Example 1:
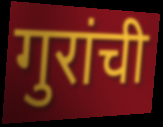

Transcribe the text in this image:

गुरांची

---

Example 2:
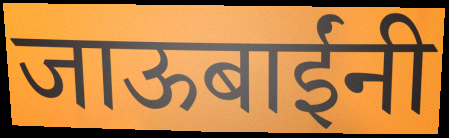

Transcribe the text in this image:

जाऊबाईंनी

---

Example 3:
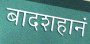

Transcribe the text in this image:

बादशहानं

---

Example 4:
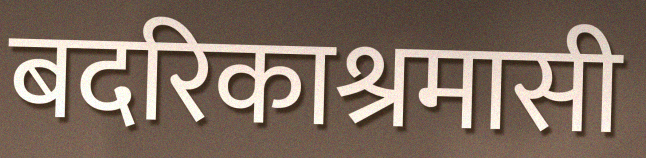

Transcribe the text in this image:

बदरिकाश्रमासी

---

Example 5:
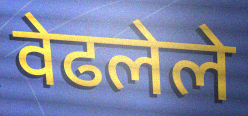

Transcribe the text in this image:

वेढलेले